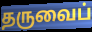
தருவைப்